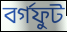
বৰ্গফুট